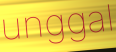
unggal